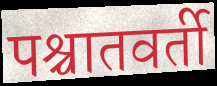
पश्चातवर्ती